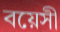
বয়েসী